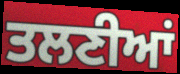
ਤਲਣੀਆਂ